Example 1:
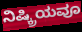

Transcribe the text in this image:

ನಿಷ್ಕ್ರಿಯವೂ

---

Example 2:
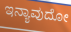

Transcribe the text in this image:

ಇನ್ಯಾವುದೋ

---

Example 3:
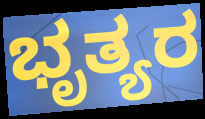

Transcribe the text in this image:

ಭೃತ್ಯರ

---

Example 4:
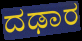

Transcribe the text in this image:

ದಢಾರ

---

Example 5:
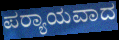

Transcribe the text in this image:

ಪರ‍್ಯಾಯವಾದ